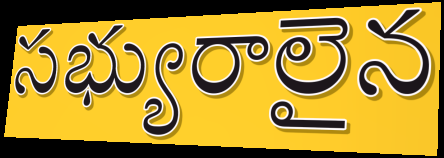
సభ్యురాలైన